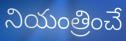
నియంత్రించే